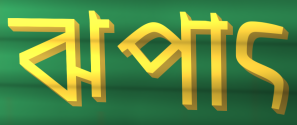
ঝপাৎ